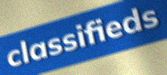
classifieds